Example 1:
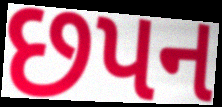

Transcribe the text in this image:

છપન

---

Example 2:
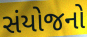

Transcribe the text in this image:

સંયોજનો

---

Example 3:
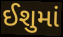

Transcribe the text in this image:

ઈશુમાં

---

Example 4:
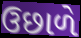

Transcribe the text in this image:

ઉછાળે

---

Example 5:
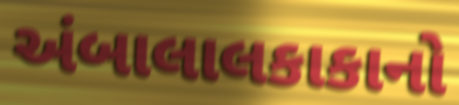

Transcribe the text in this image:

અંબાલાલકાકાનો